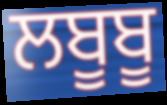
ਲਬੂਬੂ